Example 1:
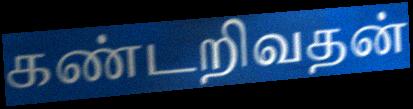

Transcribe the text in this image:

கண்டறிவதன்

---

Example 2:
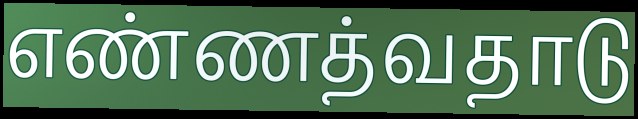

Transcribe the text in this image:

எண்ணத்வதாடு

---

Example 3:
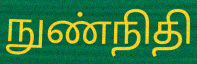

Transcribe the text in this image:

நுண்நிதி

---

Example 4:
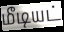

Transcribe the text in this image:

மீடியட்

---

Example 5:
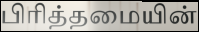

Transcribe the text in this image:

பிரித்தமையின்